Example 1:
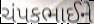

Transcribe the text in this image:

ચંપકભાઈને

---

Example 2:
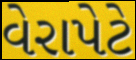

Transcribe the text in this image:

વેરાપેટે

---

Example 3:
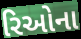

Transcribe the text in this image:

રિઓના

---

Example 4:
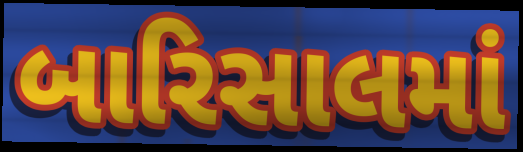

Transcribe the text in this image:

બારિસાલમાં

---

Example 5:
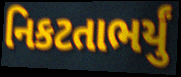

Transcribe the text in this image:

નિકટતાભર્યું